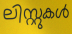
ലിസ്റ്റുകൾ